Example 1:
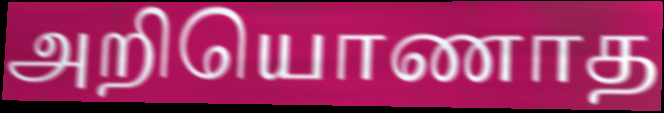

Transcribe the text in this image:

அறியொணாத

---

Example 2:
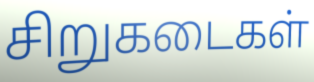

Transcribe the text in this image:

சிறுகடைகள்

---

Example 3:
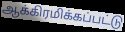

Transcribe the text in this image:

ஆக்கிரமிக்கப்பட்டு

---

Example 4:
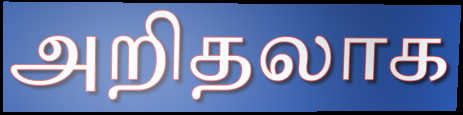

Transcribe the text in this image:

அறிதலாக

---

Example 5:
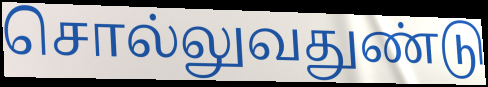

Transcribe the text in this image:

சொல்லுவதுண்டு